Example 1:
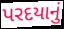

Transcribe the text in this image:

પરદયાનું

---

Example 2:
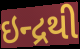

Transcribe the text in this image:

ઇન્દ્રથી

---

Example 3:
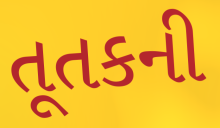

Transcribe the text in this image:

તૂતકની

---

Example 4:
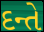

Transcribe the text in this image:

દન્તે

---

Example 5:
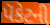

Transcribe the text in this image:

પૅકેટની